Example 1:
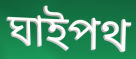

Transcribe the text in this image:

ঘাইপথ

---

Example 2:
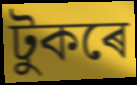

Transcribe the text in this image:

টুকৰে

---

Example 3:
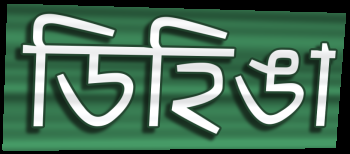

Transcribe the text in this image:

ডিহিঙা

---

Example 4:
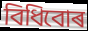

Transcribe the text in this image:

বিধিবোৰ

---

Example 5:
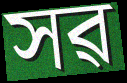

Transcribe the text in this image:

সৱ